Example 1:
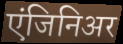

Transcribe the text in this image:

एंजिनिअर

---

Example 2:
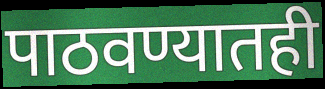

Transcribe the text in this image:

पाठवण्यातही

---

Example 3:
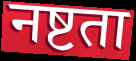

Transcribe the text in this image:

नष्टता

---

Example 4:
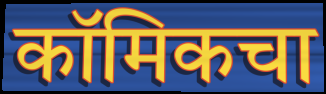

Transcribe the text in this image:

कॉमिकचा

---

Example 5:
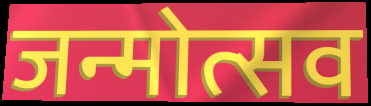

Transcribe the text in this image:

जन्मोत्सव